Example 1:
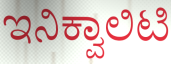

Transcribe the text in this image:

ಇನಿಕ್ವಾಲಿಟಿ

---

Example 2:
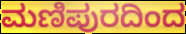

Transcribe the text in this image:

ಮಣಿಪುರದಿಂದ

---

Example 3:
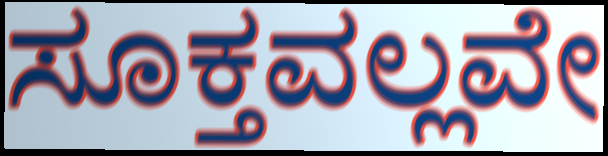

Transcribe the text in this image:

ಸೂಕ್ತವಲ್ಲವೇ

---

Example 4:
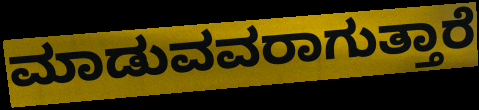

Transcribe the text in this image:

ಮಾಡುವವರಾಗುತ್ತಾರೆ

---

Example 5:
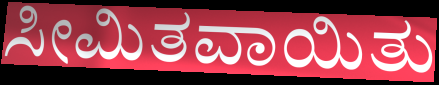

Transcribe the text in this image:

ಸೀಮಿತವಾಯಿತು